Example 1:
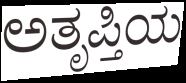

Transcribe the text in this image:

ಅತೃಪ್ತಿಯ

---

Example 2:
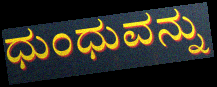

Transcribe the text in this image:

ಧುಂಧುವನ್ನು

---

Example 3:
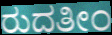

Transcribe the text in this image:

ರುದತೀಂ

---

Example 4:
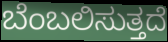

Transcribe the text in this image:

ಬೆಂಬಲಿಸುತ್ತದೆ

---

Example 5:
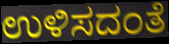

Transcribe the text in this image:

ಉಳಿಸದಂತೆ